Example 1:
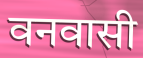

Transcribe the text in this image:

वनवासी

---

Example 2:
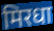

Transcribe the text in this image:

मिरधा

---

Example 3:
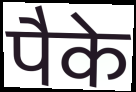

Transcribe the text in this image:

पैके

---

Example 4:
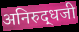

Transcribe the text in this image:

अनिरुद्धजी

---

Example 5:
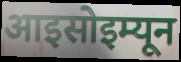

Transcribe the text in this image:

आइसोइम्यून